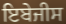
ਇਬੇਜੀਸ